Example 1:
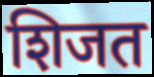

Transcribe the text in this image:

शिजत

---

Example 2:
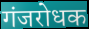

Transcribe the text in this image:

गंजरोधक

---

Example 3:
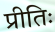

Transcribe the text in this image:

प्रीतिः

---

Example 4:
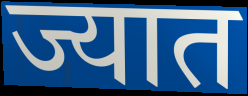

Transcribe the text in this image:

ज्यात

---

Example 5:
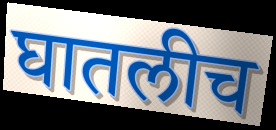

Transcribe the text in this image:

घातलीच